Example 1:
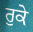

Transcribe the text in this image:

ਰੁਕੇ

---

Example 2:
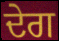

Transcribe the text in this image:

ਦੇਗ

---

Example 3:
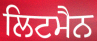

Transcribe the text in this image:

ਲਿਟਮੈਨ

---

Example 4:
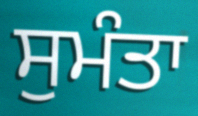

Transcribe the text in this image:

ਸੁਮੰਤਾ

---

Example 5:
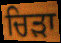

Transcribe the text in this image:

ਚਿੜਾ